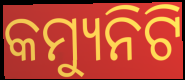
କମ୍ୟୁନିଟି